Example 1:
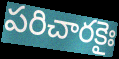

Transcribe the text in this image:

పరిచారకైః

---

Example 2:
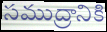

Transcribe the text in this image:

సముద్రానికి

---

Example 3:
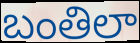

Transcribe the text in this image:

బంతిలా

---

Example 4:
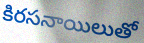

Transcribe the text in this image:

కిరసనాయిలుతో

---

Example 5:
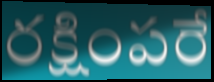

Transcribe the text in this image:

రక్షింపరే